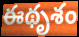
ఈథృశం